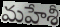
మహేశీ